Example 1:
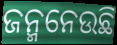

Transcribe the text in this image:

ଜନ୍ମନେଉଛି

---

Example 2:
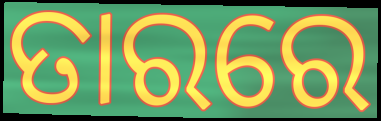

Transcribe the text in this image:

ତାରରେ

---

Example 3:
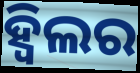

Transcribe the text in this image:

ହ୍ୱିଲର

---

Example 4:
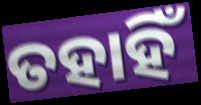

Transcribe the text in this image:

ତହାହିଁ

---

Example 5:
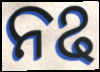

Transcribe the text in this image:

ନୡ